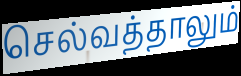
செல்வத்தாலும்